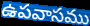
ఉపవాసము